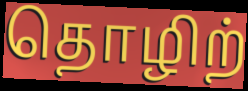
தொழிற்